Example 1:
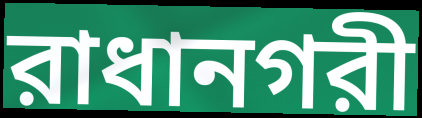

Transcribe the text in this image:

রাধানগরী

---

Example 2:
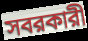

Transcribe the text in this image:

সবরকারী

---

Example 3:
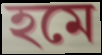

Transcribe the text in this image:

হমে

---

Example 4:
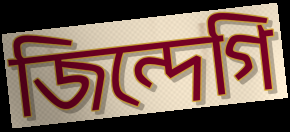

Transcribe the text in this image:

জিন্দেগি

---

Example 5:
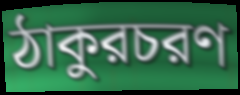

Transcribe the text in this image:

ঠাকুরচরণ